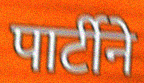
पार्टीने